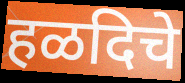
हळदिचे